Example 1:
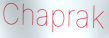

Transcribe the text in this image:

Chaprak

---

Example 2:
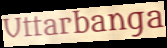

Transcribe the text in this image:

Uttarbanga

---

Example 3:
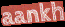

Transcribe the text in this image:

aankh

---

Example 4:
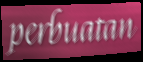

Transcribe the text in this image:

perbuatan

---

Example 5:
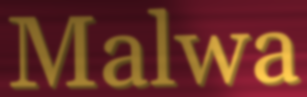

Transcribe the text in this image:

Malwa